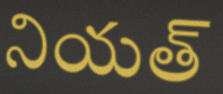
నియత్